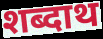
शब्दाथ